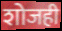
शोजही